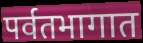
पर्वतभागात